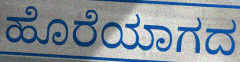
ಹೊರೆಯಾಗದ